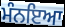
ਮੰਨਇਆ